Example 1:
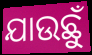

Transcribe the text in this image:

ଯାଉଛୁଁ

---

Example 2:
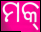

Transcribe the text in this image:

ମକ୍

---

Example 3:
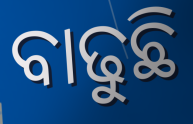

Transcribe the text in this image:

ବାଢୁଛି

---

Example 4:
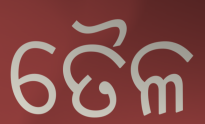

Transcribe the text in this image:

ତୈଳ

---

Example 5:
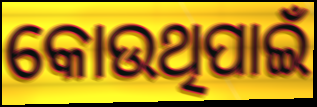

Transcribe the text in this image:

କୋଉଥିପାଇଁ